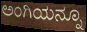
ಅಂಗಿಯನ್ನೂ